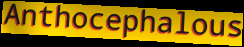
Anthocephalous